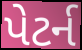
પેટર્ન